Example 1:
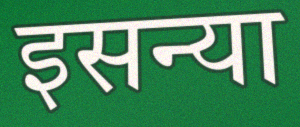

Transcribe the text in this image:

इसन्या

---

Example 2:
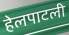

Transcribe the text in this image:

हेलपाटली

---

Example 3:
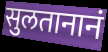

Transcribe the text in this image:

सुलतानानं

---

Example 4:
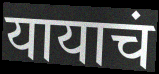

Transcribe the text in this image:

यायाचं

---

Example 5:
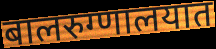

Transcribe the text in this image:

बालरुग्णालयात